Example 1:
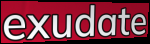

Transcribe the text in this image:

exudate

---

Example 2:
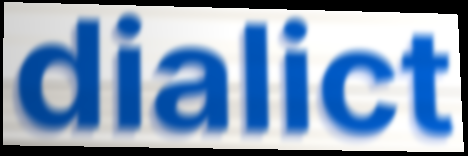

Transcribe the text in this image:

dialict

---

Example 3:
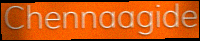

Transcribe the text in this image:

Chennaagide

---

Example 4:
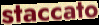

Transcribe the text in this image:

staccato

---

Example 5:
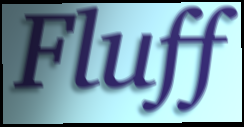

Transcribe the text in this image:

Fluff